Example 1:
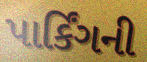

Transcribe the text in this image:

પાર્કિંગની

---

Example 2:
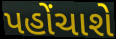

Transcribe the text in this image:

પહોંચાશે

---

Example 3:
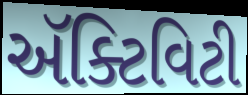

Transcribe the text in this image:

ઍક્ટિવિટી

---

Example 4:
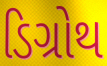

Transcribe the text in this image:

ડિગ્રોથ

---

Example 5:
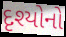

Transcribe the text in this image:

દૃશ્યોનો